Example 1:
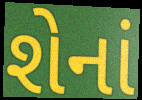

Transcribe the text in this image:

શેનાં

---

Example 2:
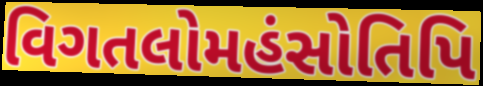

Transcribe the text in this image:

વિગતલોમહંસોતિપિ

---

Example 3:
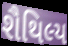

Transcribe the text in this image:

શૈથિલ્ય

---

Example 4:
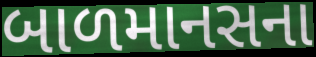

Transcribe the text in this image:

બાળમાનસના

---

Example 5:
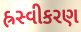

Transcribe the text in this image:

હ્રસ્વીકરણ